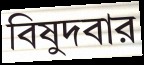
বিষুদবার